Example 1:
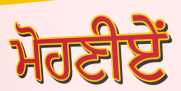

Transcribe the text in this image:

ਮੋਹਣੀਏਂ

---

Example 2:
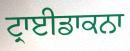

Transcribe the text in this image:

ਟ੍ਰਾਈਡਾਕਨਾ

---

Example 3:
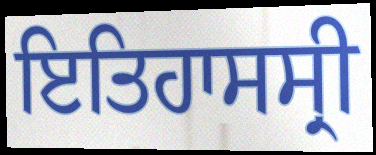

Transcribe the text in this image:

ਇਤਿਹਾਸਸ੍ਰੀ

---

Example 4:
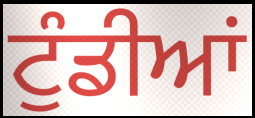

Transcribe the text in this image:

ਟੁੰਡੀਆਂ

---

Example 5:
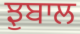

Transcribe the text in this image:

ਝੁਬਾਲ